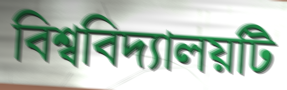
বিশ্ববিদ্যালয়টি